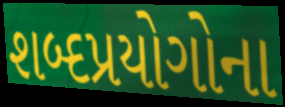
શબ્દપ્રયોગોના